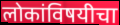
लोकांविषयीचा